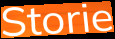
Storie